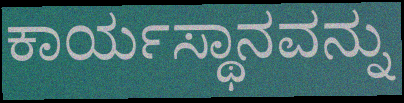
ಕಾರ್ಯಸ್ಥಾನವನ್ನು